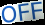
OFF